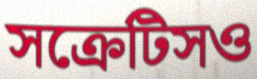
সক্রেটিসও